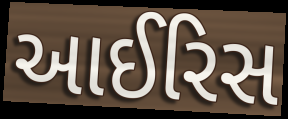
આઈરિસ